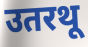
उतरथू